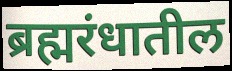
ब्रह्मरंधातील